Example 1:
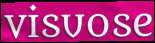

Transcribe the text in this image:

visuose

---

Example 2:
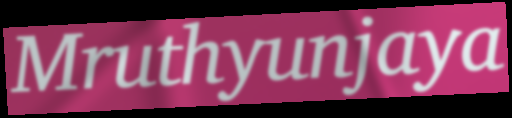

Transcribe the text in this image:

Mruthyunjaya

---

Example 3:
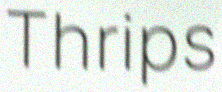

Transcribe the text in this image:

Thrips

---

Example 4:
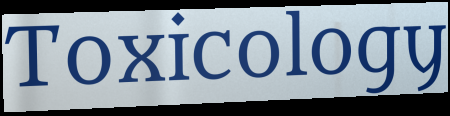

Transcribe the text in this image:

Toxicology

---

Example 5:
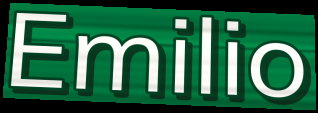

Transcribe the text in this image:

Emilio